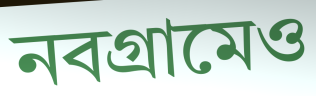
নবগ্রামেও